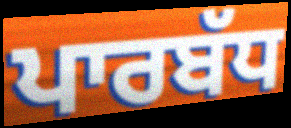
ਪਾਰਬੱਧ